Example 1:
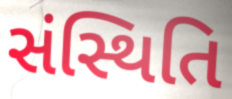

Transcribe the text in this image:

સંસ્થિતિ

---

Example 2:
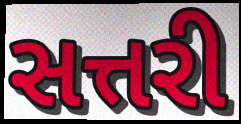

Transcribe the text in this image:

સત્તરી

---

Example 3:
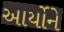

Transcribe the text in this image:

આર્યોને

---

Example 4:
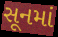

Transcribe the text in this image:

સૂનમાં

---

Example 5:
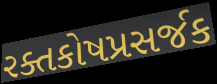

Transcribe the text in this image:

રક્તકોષપ્રસર્જક